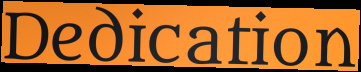
Dedication